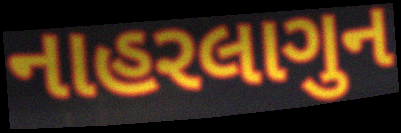
નાહરલાગુન